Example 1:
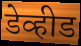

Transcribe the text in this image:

डेव्हीड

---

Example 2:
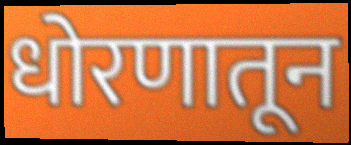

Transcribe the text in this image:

धोरणातून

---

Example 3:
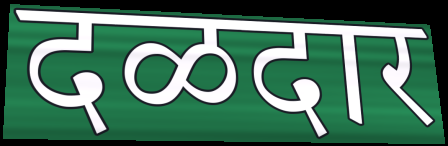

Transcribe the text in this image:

दळदार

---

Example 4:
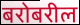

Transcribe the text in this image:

बरोबरील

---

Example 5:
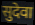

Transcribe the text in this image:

सुदेवा